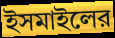
ইসমাইলের